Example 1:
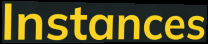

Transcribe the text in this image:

Instances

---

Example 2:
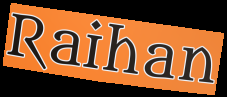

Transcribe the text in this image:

Raihan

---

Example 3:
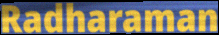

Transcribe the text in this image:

Radharaman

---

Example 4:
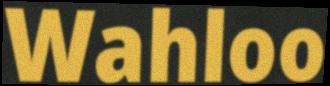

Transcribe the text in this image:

Wahloo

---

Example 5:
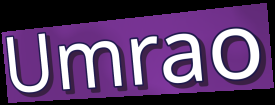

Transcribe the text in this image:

Umrao